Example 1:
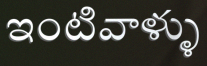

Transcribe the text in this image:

ఇంటివాళ్ళు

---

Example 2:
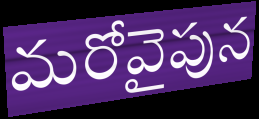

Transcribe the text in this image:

మరోవైపున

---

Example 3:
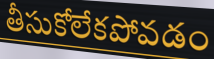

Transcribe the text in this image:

తీసుకోలేకపోవడం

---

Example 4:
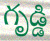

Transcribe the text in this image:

గృడ్డి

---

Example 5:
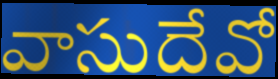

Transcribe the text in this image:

వాసుదేవో